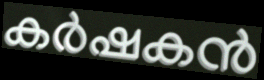
കർഷകൻ